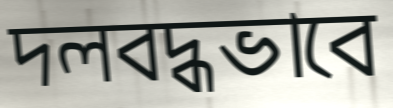
দলবদ্ধভাবে